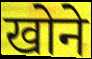
खोने